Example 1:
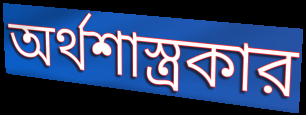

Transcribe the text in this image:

অর্থশাস্ত্রকার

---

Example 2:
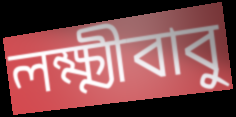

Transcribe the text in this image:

লক্ষ্মীবাবু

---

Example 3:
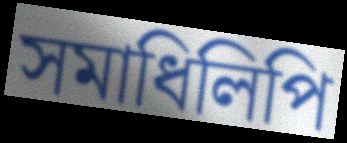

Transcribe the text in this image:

সমাধিলিপি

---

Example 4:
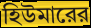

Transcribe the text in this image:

হিউমারের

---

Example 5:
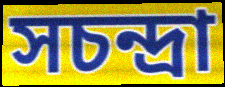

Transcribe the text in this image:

সচন্দ্রা